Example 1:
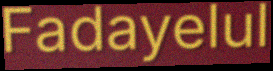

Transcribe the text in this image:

Fadayelul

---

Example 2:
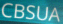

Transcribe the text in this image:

CBSUA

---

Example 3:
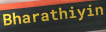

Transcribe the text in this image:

Bharathiyin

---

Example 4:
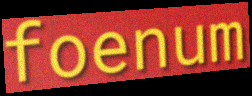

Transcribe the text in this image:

foenum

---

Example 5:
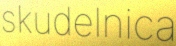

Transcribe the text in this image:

skudelnica